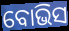
ବୋଭିସ